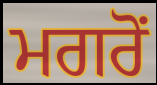
ਮਗਰੋਂ